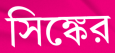
সিঙ্কের